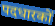
पदधारकों